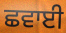
ਛਵਾਈ